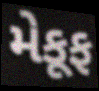
મેકૂફ